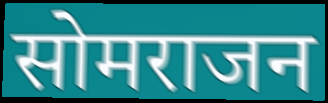
सोमराजन